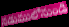
నడుములోనుండి